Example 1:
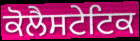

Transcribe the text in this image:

ਕੋਲੈਸਟੇਟਿਕ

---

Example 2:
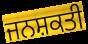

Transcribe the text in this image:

ਜਨਸ਼ਕਤੀ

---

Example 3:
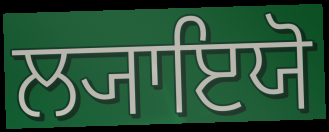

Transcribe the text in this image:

ਲ੍ਯਾਇਯੋ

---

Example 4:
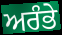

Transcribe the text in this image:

ਅਰੰਭੇ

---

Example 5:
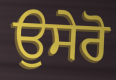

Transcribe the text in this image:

ਉਸੇਰੋ